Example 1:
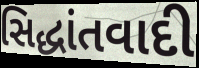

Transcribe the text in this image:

સિદ્ધાંતવાદી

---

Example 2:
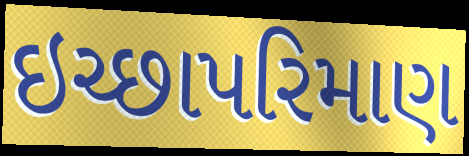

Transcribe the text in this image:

ઇચ્છાપરિમાણ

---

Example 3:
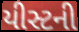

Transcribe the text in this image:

યીસ્ટની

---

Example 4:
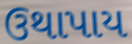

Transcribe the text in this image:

ઉથાપાય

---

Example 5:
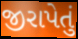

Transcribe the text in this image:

જીરાપેતું